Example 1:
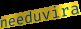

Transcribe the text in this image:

needuvira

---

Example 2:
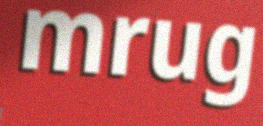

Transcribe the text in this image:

mrug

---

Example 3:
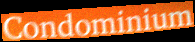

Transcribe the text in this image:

Condominium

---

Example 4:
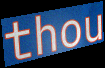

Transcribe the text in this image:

thou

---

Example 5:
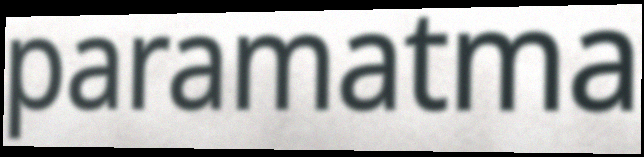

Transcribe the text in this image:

paramatma